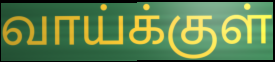
வாய்க்குள்